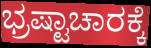
ಭ್ರಷ್ಟಾಚಾರಕ್ಕೆ